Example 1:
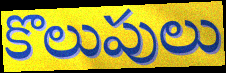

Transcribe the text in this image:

కొలుపులు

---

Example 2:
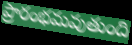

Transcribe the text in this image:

ప్రారంభమవుతుంది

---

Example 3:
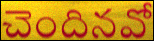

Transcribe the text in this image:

చెందినవో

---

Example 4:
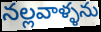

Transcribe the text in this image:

నల్లవాళ్ళను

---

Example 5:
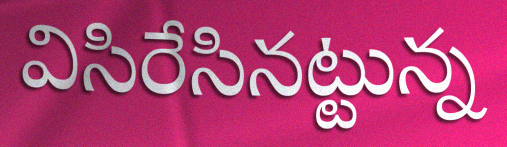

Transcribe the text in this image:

విసిరేసినట్టున్న